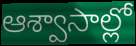
ఆశ్వాసాల్లో